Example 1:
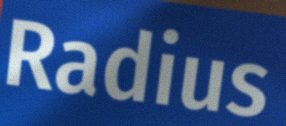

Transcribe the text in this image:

Radius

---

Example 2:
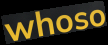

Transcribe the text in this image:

whoso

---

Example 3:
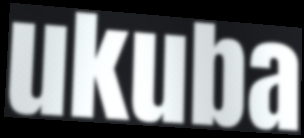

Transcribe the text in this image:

ukuba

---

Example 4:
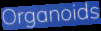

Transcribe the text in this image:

Organoids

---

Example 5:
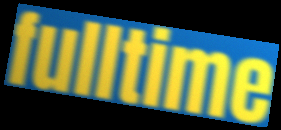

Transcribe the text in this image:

fulltime